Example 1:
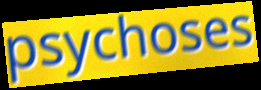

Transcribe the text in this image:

psychoses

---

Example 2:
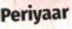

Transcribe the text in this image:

Periyaar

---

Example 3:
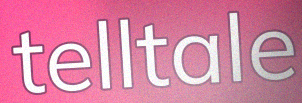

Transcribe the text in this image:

telltale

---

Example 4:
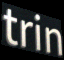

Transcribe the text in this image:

trin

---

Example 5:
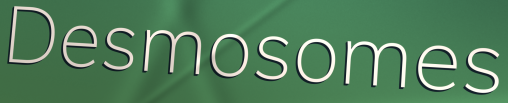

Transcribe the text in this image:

Desmosomes